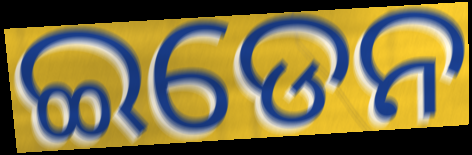
ଇଡେନ